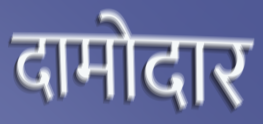
दामोदार